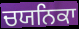
ਚਯਨਿਕਾ